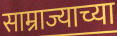
साम्राज्याच्या